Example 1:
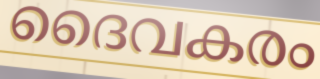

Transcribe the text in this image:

ദൈവകരം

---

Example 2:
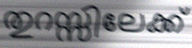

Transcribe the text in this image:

തുറസ്സിലേക്ക്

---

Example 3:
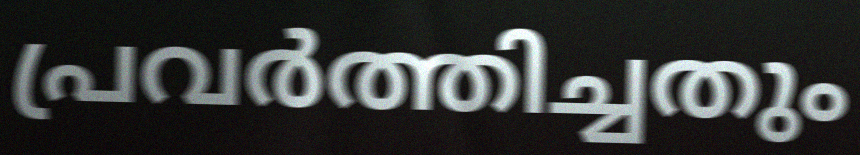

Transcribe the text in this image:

പ്രവർത്തിച്ചതും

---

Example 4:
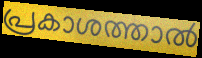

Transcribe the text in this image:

പ്രകാശത്താൽ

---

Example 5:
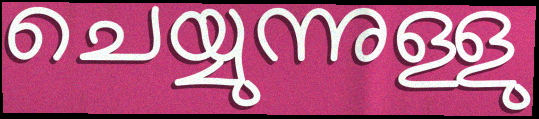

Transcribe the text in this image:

ചെയ്യുന്നുള്ളു